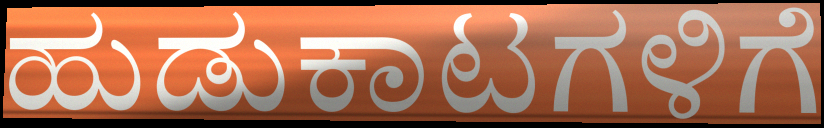
ಹುಡುಕಾಟಗಳಿಗೆ